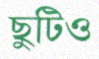
ছুটিও